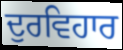
ਦੁਰਵਿਹਾਰ